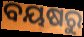
ବୟଷରୁ